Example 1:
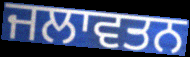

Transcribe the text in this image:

ਜਲਾਵਤਨ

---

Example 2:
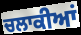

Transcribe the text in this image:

ਚਲਾਕੀਆਂ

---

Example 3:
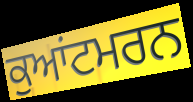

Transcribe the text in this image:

ਕੁਆਂਟਮਰਨ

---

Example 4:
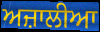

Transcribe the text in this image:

ਅਜ਼ਾਲੀਆ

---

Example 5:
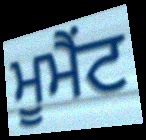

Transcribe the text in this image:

ਮੂਮੈਂਟ